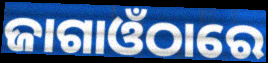
ଜାଗାଓଁଠାରେ